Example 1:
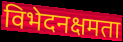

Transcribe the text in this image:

विभेदनक्षमता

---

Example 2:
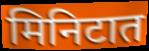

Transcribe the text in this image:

मिनिटात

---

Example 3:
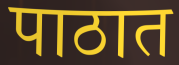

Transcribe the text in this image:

पाठात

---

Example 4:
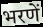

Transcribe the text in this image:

भरणें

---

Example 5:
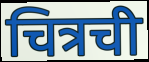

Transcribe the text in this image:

चित्रची